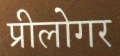
प्रीलोगर